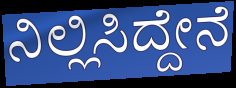
ನಿಲ್ಲಿಸಿದ್ದೇನೆ